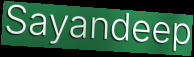
Sayandeep